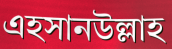
এহসানউল্লাহ